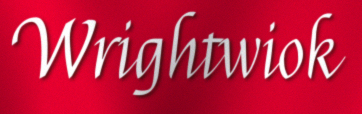
Wrightwiok